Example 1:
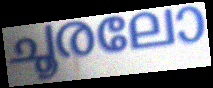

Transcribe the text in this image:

ചൂരലോ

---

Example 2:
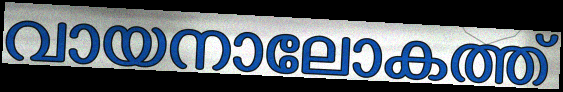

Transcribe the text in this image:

വായനാലോകത്ത്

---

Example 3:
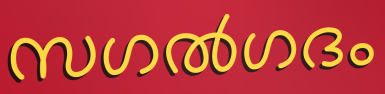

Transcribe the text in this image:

സഗൽഗദം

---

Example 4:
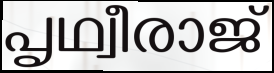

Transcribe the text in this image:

പൃഥ്വീരാജ്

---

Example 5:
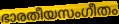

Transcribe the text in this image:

ഭാരതീയസംഗീതം